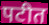
पटीत